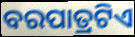
ବରପାତ୍ରଟିଏ